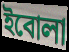
ইবোলা